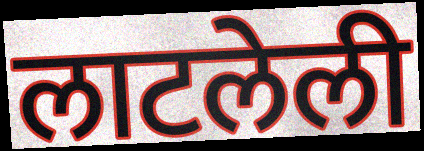
लाटलेली